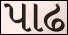
પાઢ